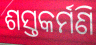
ଶସ୍ତକର୍ମଣି